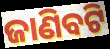
ଜାଣିବଟି